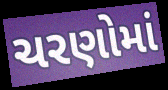
ચરણોમાં